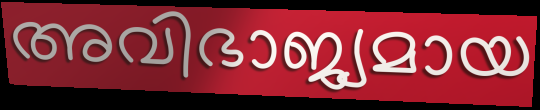
അവിഭാജ്യമായ